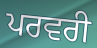
ਪਰਵਰੀ